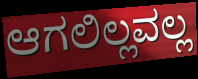
ಆಗಲಿಲ್ಲವಲ್ಲ